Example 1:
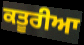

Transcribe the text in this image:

ਕਤੂਰੀਆ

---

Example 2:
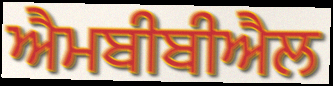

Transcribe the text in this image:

ਐਮਬੀਬੀਐਲ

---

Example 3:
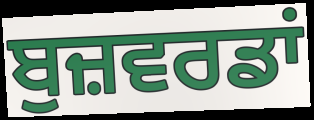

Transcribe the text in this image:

ਬੁਜ਼ਵਰਡਾਂ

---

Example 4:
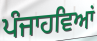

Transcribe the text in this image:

ਪੰਜਾਹਵਿਆਂ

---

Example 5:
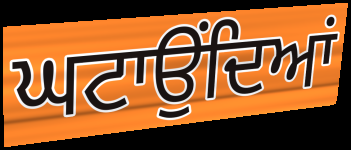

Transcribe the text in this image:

ਘਟਾਉਂਦਿਆਂ